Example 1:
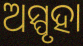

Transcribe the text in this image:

ଅସ୍ପୃହା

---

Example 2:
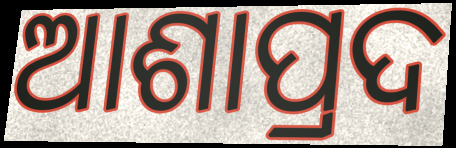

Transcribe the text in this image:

ଆଶାପ୍ରଦ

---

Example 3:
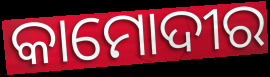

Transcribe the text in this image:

କାମୋଦୀର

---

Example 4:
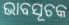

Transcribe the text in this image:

ଭାବସୂଚକ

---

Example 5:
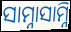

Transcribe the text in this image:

ସାମ୍ନାସାମ୍ନି